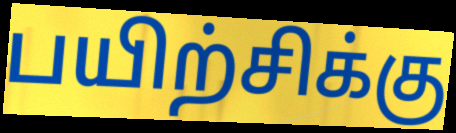
பயிற்சிக்கு